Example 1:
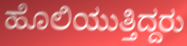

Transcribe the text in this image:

ಹೊಲಿಯುತ್ತಿದ್ದರು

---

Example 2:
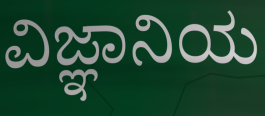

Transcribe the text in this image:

ವಿಜ್ಞಾನಿಯ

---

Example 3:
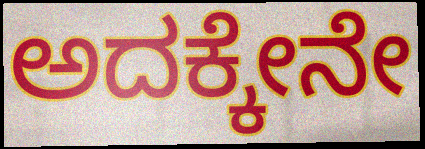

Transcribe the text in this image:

ಅದಕ್ಕೇನೇ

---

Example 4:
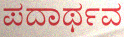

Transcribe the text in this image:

ಪದಾರ್ಥವ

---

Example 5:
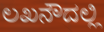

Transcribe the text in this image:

ಲಖನೌದಲ್ಲಿ